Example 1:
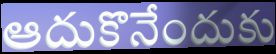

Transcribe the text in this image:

ఆదుకొనేందుకు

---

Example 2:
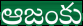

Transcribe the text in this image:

ఆజంకు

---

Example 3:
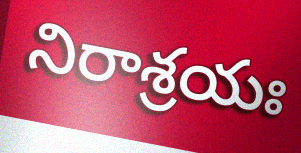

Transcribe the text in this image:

నిరాశ్రయః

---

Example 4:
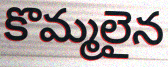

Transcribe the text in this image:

కొమ్మలైన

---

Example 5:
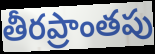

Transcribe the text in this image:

తీరప్రాంతపు